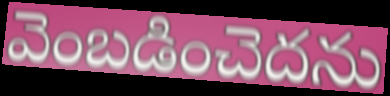
వెంబడించెదను